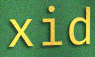
xid